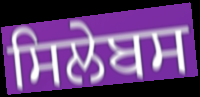
ਸਿਲੇਬਸ